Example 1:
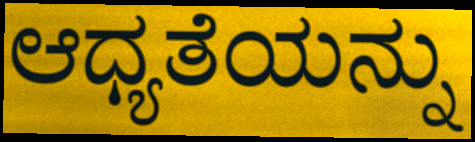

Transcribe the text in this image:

ಆಧ್ಯತೆಯನ್ನು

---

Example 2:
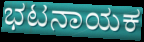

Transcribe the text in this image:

ಭಟನಾಯಕ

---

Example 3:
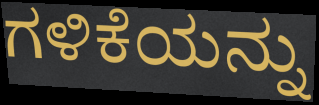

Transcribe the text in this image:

ಗಳಿಕೆಯನ್ನು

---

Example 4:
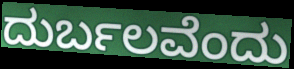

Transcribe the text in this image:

ದುರ್ಬಲವೆಂದು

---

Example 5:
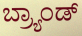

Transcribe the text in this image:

ಬ್ರ್ಯಾಂಡ್